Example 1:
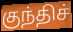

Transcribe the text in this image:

குந்திச்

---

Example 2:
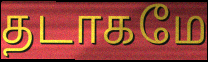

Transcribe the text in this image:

தடாகமே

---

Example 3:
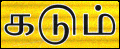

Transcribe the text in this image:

கடும்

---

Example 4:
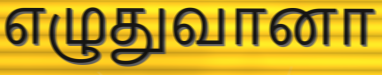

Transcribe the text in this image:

எழுதுவானா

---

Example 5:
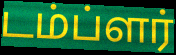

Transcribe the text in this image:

டம்ப்ளர்